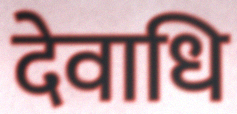
देवाधि